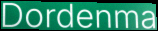
Dordenma